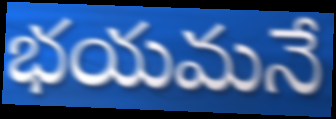
భయమనే